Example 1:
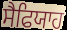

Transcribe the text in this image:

ਸੈਫਿਯਾਹ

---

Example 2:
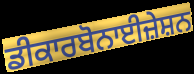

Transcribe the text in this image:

ਡੀਕਾਰਬੋਨਾਈਜ਼ੇਸ਼ਨ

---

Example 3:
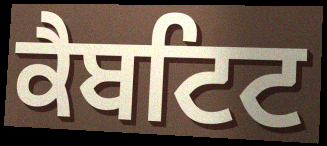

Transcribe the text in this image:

ਕੈਬਟਿਟ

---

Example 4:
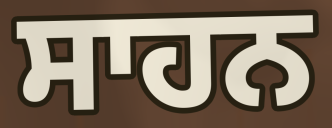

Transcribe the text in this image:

ਸਾਹਨ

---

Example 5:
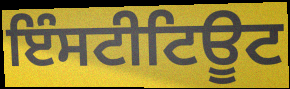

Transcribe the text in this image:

ਇੰਸਟੀਟਿਊਟ